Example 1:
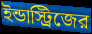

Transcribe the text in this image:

ইন্ডাস্ট্রিজের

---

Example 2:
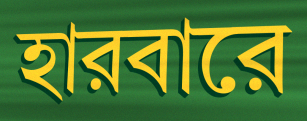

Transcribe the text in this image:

হারবারে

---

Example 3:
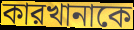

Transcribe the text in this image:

কারখানাকে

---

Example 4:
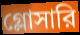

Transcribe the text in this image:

গ্লোসারি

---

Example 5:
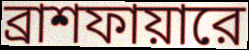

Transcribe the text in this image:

ব্রাশফায়ারে